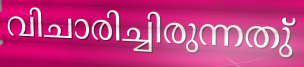
വിചാരിച്ചിരുന്നതു്